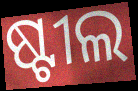
ଷ୍ଟୀଲ